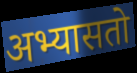
अभ्यासतो